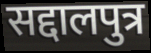
सद्दालपुत्र